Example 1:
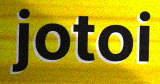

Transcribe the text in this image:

jotoi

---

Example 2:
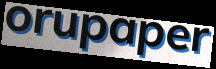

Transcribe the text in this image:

orupaper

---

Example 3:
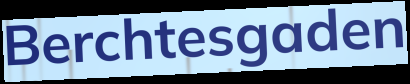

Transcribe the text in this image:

Berchtesgaden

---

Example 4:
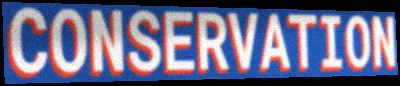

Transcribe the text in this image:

CONSERVATION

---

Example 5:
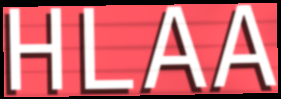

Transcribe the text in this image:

HLAA